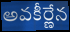
అవకీర్ణేన